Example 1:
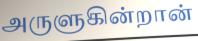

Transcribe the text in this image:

அருளுகின்றான்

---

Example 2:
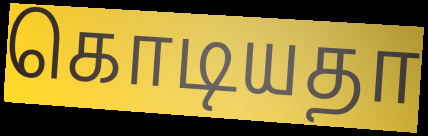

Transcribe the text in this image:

கொடியதா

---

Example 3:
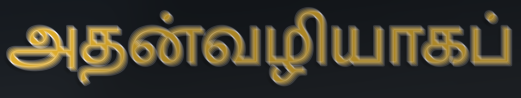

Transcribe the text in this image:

அதன்வழியாகப்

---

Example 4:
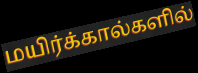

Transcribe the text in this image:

மயிர்க்கால்களில்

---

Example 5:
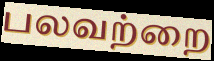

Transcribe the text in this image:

பலவற்றை